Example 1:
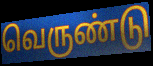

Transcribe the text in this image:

வெருண்டு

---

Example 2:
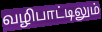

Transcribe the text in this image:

வழிபாட்டிலும்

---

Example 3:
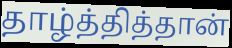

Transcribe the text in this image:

தாழ்த்தித்தான்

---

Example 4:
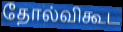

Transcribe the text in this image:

தோல்விகூட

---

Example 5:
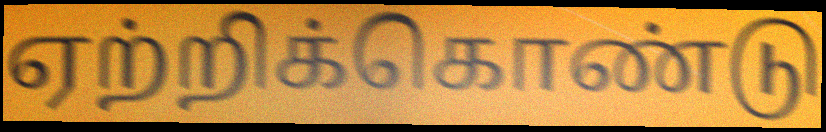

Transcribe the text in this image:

ஏற்றிக்கொண்டு